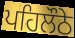
ਪਹਿਲੌਠੇ